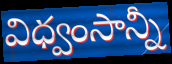
విధ్వంసాన్నీ